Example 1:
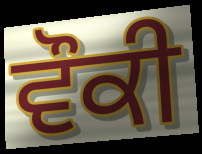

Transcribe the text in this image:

ਵੌਕੀ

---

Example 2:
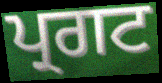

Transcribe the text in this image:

ਪ੍ਰਗਟ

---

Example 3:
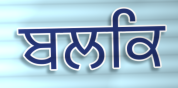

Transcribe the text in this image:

ਬਲਕਿ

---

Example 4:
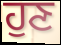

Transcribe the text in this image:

ਹੁਣ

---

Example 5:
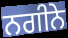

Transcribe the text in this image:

ਨਗੀਨੇ